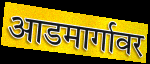
आडमार्गावर